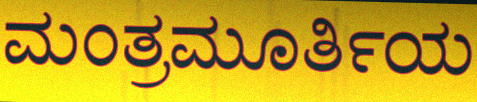
ಮಂತ್ರಮೂರ್ತಿಯ